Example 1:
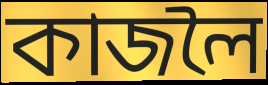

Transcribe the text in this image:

কাজলৈ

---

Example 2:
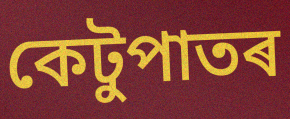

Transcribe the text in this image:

কেটুপাতৰ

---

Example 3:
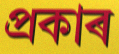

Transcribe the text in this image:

প্ৰকাৰ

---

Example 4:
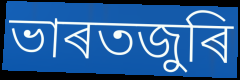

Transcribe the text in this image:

ভাৰতজুৰি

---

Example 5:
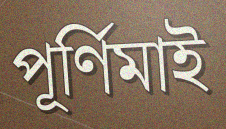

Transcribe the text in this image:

পূৰ্ণিমাই